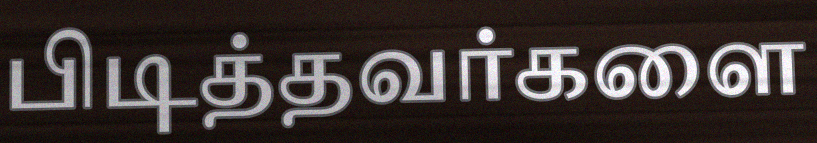
பிடித்தவர்களை